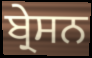
ਬ੍ਰੇਸਨ